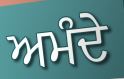
ਅਮੰਦੇ